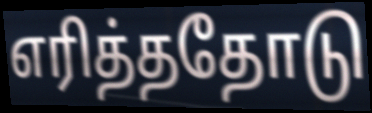
எரித்ததோடு